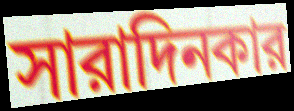
সারাদিনকার